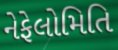
નેફેલોમિતિ